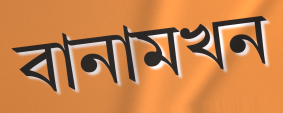
বানামখন